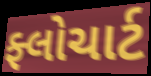
ફ્લોચાર્ટ